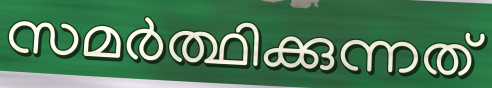
സമർത്ഥിക്കുന്നത്